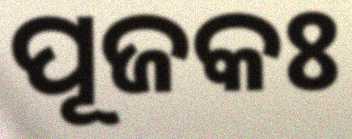
ପୂଜକଃ